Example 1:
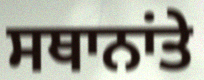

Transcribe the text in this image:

ਸਥਾਨਾਂਤੇ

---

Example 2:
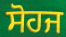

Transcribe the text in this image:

ਸੋਹਜ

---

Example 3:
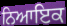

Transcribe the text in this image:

ਨਿਆਇਕ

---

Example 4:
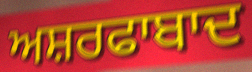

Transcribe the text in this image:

ਅਸ਼ਰਫਾਬਾਦ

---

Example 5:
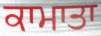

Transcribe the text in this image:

ਕਾਮਾਤਾ